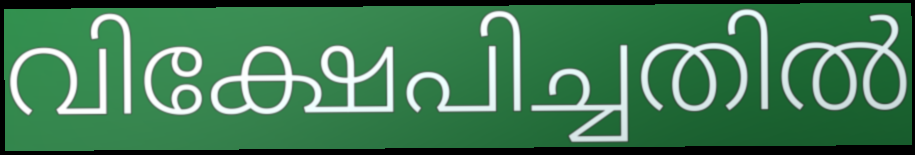
വിക്ഷേപിച്ചതിൽ